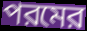
পরমের